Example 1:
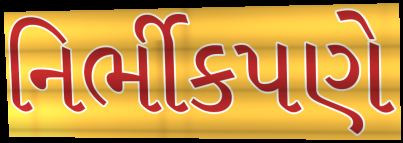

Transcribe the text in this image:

નિર્ભીકપણે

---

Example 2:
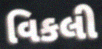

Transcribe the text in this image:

વિકલી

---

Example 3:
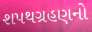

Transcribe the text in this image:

શપથગ્રહણનો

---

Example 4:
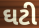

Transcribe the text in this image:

ઘટી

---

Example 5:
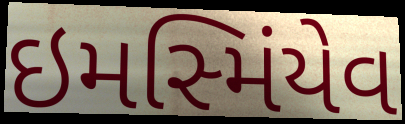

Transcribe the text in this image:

ઇમસ્મિંયેવ